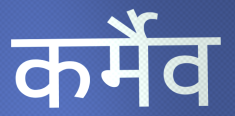
कर्मैव